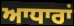
ਆਧਾਰਾਂ